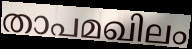
താപമഖിലം